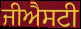
ਜੀਐਸਟੀ